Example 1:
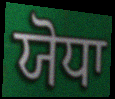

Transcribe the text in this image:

ਯੋਧਾ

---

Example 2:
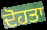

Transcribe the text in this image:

ਦੋਹਤਾ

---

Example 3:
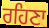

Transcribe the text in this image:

ਰਹਿਣਾ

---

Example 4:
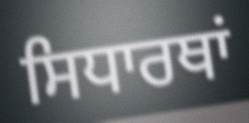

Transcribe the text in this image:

ਸਿਧਾਰਥਾਂ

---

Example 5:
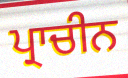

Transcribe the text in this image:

ਪ੍ਰਾਚੀਨ